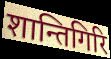
शान्तिगिरि